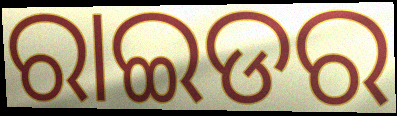
ରାଇଡର